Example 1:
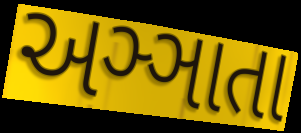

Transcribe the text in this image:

અઞ્ઞાતા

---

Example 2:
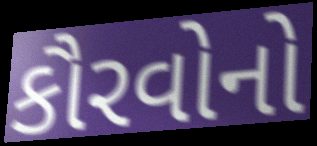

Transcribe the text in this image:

કૌરવોનો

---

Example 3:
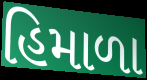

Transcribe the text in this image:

હિમાળા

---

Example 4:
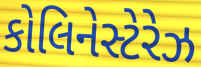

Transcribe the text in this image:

કોલિનેસ્ટેરેઝ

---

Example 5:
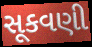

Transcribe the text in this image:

સૂકવણી